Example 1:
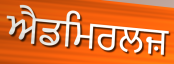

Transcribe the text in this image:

ਐਡਮਿਰਲਜ਼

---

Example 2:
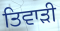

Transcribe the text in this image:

ਤਿਵਾੜੀ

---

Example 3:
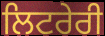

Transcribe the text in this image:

ਲਿਟਰੇਰੀ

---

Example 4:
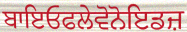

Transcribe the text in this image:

ਬਾਇਓਫਲੇਵੋਨੋਇਡਜ਼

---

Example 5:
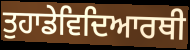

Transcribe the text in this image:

ਤੁਹਾਡੇਵਿਦਿਆਰਥੀ